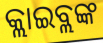
କ୍ଲାଇବ୍ଲଙ୍କ